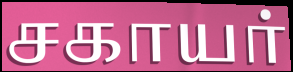
சகாயர்